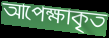
আপেক্ষাকৃত